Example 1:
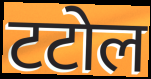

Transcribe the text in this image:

टटोल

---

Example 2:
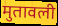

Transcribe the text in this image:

मुतावली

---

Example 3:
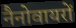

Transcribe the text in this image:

नैनोवायरों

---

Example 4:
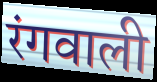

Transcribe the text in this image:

रंगवाली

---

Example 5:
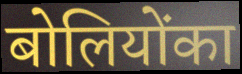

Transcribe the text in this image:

बोलियोंका